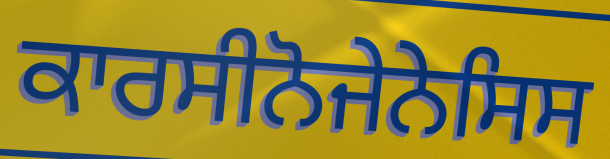
ਕਾਰਸੀਨੋਜੇਨੇਸਿਸ